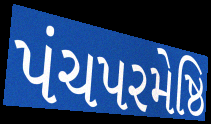
પંચપરમેષ્ઠિ